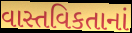
વાસ્તવિકતાનાં